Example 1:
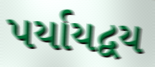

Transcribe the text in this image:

પર્યાયદ્વય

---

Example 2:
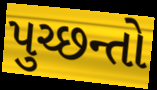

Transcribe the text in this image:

પુચ્છન્તો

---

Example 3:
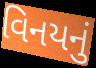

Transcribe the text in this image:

વિનયનું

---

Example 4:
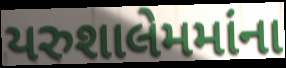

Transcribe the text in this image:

યરુશાલેમમાંના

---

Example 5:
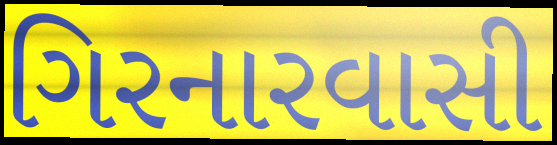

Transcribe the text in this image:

ગિરનારવાસી